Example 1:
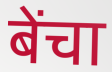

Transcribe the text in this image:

बेंचा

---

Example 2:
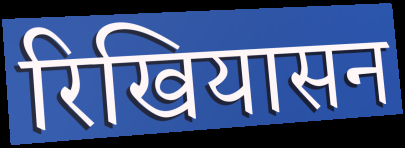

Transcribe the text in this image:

रिखियासन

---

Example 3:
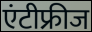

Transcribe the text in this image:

एंटीफ्रीज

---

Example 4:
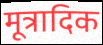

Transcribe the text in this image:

मूत्रादिक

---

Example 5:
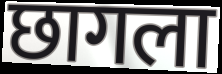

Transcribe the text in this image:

छागला